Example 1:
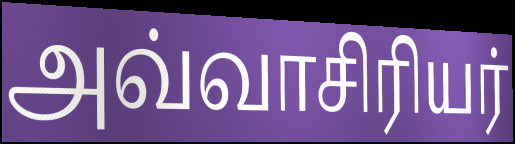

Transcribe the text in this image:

அவ்வாசிரியர்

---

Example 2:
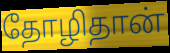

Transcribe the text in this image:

தோழிதான்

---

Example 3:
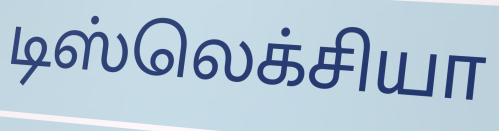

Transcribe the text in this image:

டிஸ்லெக்சியா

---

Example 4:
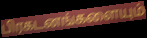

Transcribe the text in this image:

பிரகடனங்களையும்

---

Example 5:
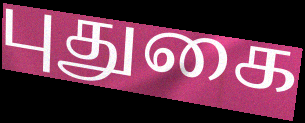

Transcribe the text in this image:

புதுகை